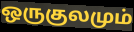
ஒருகுலமும்